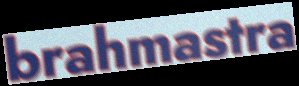
brahmastra